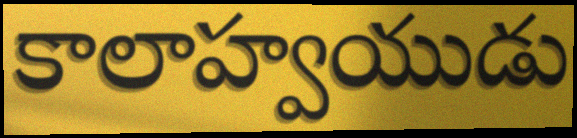
కాలాహ్వయుడు